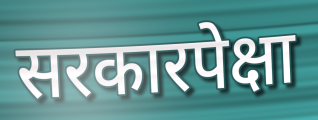
सरकारपेक्षा